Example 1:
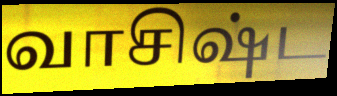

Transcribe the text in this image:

வாசிஷ்ட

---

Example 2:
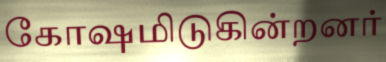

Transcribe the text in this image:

கோஷமிடுகின்றனர்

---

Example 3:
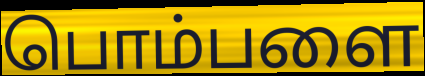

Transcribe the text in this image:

பொம்பளை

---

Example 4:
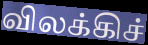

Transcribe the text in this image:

விலக்கிச்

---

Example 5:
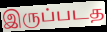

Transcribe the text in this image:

இருப்படத